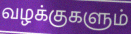
வழக்குகளும்